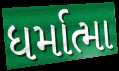
ધર્માત્મા